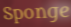
Sponge